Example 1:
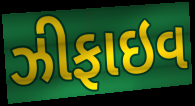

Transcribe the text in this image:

ઝીફાઇવ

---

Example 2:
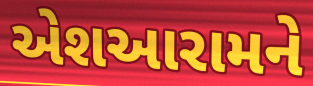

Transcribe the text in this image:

એશઆરામને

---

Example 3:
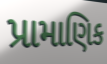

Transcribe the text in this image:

પ્રામાણિક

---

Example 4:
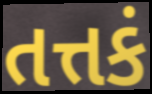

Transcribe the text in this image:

તત્તકં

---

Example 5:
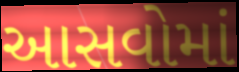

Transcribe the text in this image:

આસવોમાં